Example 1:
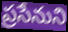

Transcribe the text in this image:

ప్రసేనుని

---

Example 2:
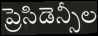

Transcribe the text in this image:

ప్రెసిడెన్సీల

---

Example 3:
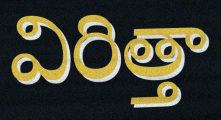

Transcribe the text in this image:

విరిత్తా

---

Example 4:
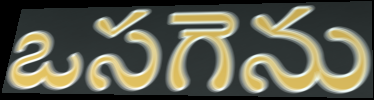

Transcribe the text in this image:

ఒసగెను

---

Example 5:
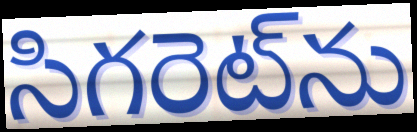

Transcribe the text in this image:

సిగరెట్‌ను